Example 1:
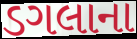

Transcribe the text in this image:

ડગલાના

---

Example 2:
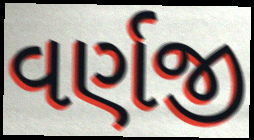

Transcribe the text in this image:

વર્ણજી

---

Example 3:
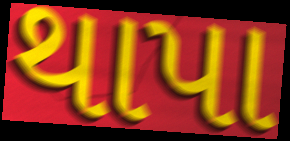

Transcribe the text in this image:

થાપા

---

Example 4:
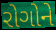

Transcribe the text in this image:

રોગોને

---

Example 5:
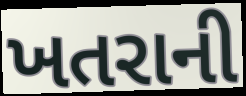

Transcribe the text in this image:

ખતરાની